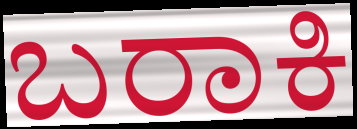
ಬರಾಕಿ